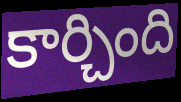
కార్చింది